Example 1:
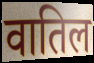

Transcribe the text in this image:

वातिल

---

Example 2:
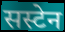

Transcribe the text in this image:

सस्टेन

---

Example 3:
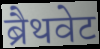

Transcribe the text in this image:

ब्रैथवेट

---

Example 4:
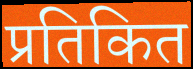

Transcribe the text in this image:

प्रतिकित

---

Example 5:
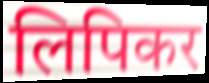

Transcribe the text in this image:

लिपिकर